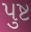
પુષ્ટ